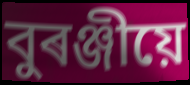
বুৰঞ্জীয়ে